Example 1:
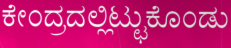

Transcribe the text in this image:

ಕೇಂದ್ರದಲ್ಲಿಟ್ಟುಕೊಂಡು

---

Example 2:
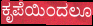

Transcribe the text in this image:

ಕೃಪೆಯಿಂದಲೂ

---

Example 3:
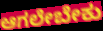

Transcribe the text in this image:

ಆಗಲೇಬೇಕು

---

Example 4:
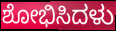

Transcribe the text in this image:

ಶೋಭಿಸಿದಳು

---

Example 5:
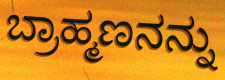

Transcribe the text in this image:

ಬ್ರಾಹ್ಮಣನನ್ನು